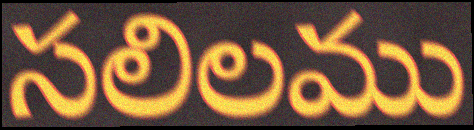
సలిలము